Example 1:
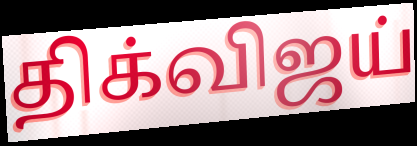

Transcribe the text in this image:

திக்விஜய்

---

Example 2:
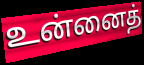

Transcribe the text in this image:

உன்னைத்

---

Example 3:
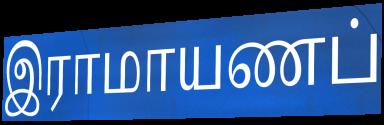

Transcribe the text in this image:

இராமாயணப்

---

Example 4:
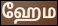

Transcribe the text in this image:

ஹேம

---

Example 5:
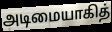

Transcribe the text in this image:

அடிமையாகித்